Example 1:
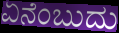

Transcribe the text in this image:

ಏನೆಂಬುದು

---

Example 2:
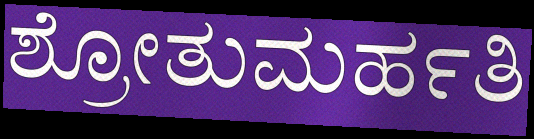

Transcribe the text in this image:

ಶ್ರೋತುಮರ್ಹತಿ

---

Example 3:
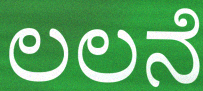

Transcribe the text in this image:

ಲಲನೆ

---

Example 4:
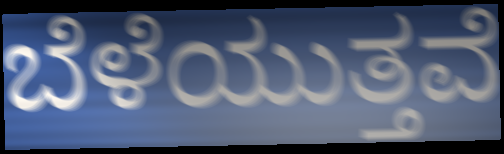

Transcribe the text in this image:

ಬೆಳೆಯುತ್ತವೆ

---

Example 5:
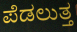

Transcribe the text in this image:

ಪೆಡಲುತ್ತ